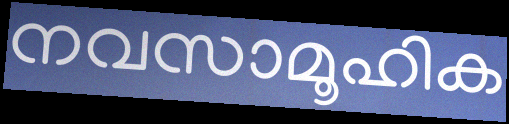
നവസാമൂഹിക